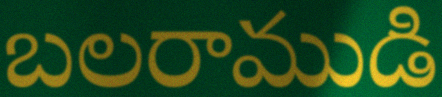
బలరాముడి